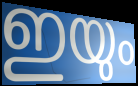
ഇയും